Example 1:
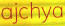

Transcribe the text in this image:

ajchya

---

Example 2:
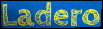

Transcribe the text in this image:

Ladero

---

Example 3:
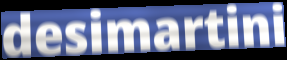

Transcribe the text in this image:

desimartini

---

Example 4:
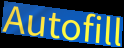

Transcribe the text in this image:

Autofill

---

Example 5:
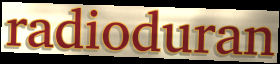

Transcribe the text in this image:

radioduran